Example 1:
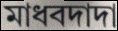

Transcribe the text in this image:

মাধবদাদা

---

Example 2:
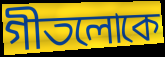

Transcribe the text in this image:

গীতলোকে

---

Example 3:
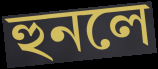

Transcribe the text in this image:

হুনলে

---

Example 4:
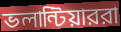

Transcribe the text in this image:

ভলান্টিয়াররা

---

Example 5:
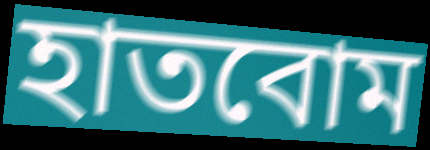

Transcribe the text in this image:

হাতবোম